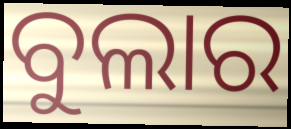
ବୁଲାର